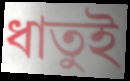
ধাতুই